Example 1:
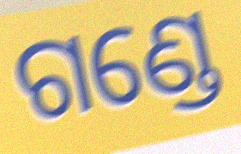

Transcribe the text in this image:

ଗଣ୍ଡେ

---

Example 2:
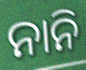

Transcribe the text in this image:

ନାନି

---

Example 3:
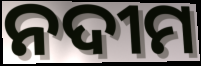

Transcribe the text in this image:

ନଦୀମ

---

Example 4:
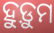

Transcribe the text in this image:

ହୁଡ଼ୁମ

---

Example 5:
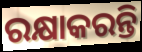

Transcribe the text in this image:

ରକ୍ଷାକରନ୍ତି